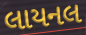
લાયનલ